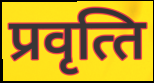
प्रवृत्‍ति